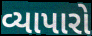
વ્યાપારો